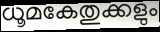
ധൂമകേതുക്കളും